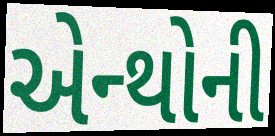
એન્થોની